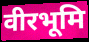
वीरभूमि